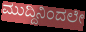
ಮುದ್ದಿನಿಂದಲೇ